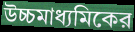
উচ্চমাধ্যমিকের